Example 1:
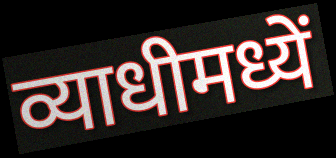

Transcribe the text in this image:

व्याधीमध्यें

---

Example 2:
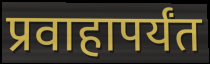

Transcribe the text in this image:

प्रवाहापर्यंत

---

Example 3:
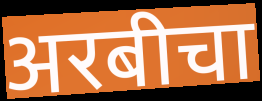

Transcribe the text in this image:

अरबीचा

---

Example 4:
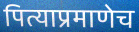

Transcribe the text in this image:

पित्याप्रमाणेच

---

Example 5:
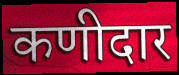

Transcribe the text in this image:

कणीदार